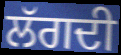
ਲੱਗਦੀ